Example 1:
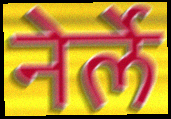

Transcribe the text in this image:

नेर्ले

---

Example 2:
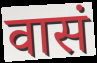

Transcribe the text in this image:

वासं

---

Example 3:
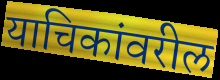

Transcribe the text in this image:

याचिकांवरील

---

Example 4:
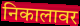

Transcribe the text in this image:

निकालावर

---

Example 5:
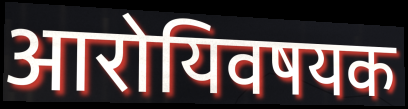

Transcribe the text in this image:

आरोयिवषयक